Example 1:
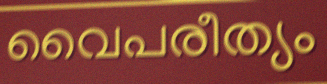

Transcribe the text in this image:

വൈപരീത്യം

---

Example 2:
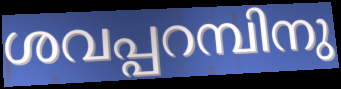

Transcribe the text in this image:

ശവപ്പറമ്പിനു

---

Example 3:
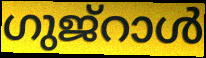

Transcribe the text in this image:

ഗുജ്റാൾ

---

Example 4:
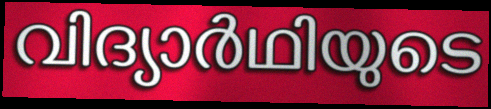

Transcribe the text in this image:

വിദ്യാർഥിയുടെ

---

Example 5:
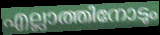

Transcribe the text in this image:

എല്ലാത്തിനോടും